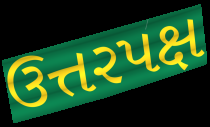
ઉત્તરપક્ષ